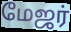
மேஜர்